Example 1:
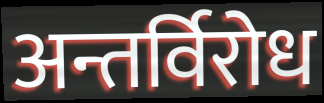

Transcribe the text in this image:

अन्तर्विरोध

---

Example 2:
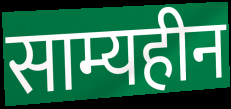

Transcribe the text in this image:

साम्यहीन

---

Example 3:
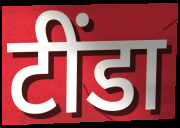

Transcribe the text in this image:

टींडा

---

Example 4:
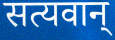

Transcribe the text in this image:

सत्यवान्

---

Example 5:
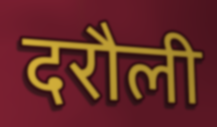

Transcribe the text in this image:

दरौली